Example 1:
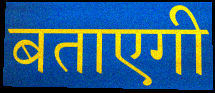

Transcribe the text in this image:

बताएगी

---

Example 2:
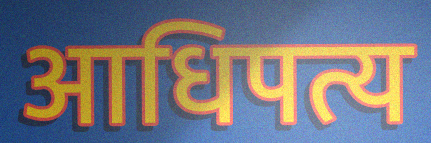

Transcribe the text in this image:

आधिपत्य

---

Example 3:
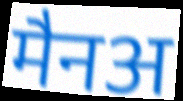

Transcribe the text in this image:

मैनअ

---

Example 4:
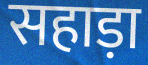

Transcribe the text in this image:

सहाड़ा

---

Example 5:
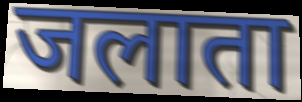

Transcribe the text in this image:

जलाता